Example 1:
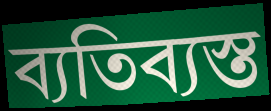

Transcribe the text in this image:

ব্যতিব্যস্ত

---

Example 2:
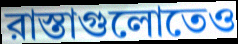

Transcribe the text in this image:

রাস্তাগুলোতেও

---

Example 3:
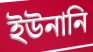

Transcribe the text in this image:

ইউনানি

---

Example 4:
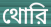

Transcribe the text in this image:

থোরি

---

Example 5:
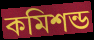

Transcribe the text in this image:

কমিশন্ড